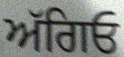
ਅੱਗਿਓ